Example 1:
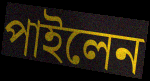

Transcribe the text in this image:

পাইলেন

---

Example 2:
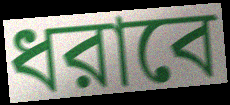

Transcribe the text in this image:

ধরাবে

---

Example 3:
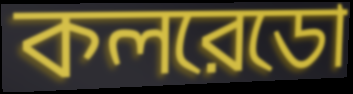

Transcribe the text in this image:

কলরেডো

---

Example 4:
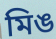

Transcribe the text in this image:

মিঙ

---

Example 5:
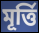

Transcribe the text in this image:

মূর্ত্তি